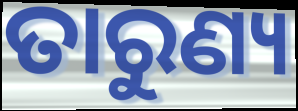
ତାରୁଣ୍ୟ